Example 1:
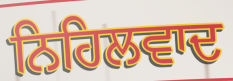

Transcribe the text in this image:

ਨਿਹਿਲਵਾਦ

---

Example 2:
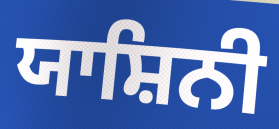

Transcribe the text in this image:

ਯਾਸ਼ਿਨੀ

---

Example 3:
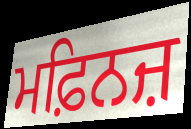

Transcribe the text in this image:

ਮਫ਼ਿਨਜ਼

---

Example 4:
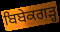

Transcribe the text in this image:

ਬਿਬੇਕਗੜ੍ਹ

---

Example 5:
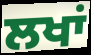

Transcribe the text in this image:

ਲਖਾਂ